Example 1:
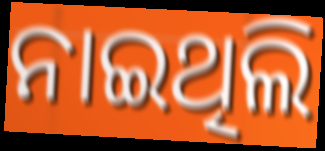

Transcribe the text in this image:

ନାଇଥିଲି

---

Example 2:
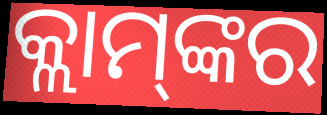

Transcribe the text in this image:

କ୍ଲାମ୍‌ଙ୍କର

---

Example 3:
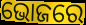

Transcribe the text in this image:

ଭୋଜରେ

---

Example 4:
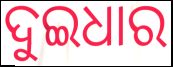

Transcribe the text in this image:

ଦୁଇଧାର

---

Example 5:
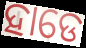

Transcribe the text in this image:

ହାଡେ